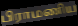
பிராமணிய